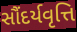
સૌંદર્યવૃત્તિ